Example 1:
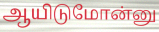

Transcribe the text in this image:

ஆயிடுமோன்னு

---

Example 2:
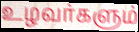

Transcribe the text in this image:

உழவர்களும்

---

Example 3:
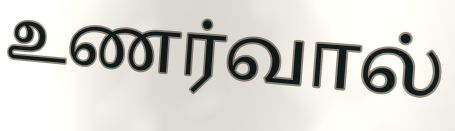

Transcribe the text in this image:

உணர்வால்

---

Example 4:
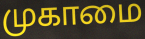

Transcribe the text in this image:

முகாமை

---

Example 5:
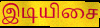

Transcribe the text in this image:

இடியிசை